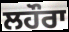
ਲਹੌਰਾ